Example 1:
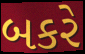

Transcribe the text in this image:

બકરે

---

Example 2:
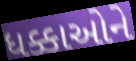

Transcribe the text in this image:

ધક્કાઓને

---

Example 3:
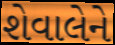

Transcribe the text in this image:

શેવાલેને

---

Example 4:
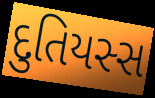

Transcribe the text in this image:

દુતિયસ્સ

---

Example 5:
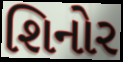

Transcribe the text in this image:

શિનોર